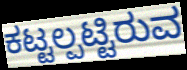
ಕಟ್ಟಲ್ಪಟ್ಟಿರುವ